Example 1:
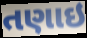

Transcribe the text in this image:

તણાઇ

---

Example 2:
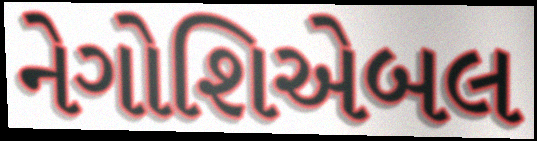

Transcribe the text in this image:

નેગોશિએબલ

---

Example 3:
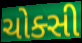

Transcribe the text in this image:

ચોક્સી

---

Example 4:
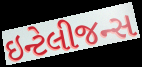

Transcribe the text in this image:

ઇન્ટેલીજન્સ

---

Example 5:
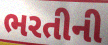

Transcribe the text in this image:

ભરતીની